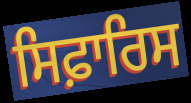
ਸਿਫ਼ਾਰਿਸ